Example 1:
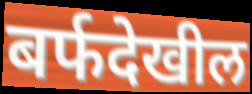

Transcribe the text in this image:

बर्फदेखील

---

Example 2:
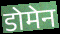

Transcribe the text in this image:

डोमेन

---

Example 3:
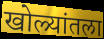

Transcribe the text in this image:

खोल्यांतला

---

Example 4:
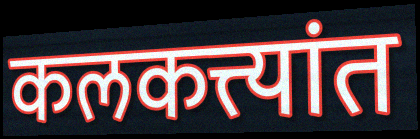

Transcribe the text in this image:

कलकत्त्यांत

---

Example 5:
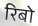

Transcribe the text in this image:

रिबो